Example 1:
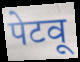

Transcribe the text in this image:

पेटवू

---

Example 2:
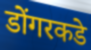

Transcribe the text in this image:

डोंगरकडे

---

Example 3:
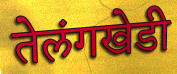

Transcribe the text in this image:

तेलंगखेडी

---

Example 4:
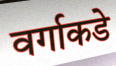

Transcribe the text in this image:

वर्गाकडे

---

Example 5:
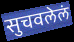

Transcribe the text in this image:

सुचवलेलं